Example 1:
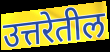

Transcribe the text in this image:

उत्तरेतील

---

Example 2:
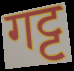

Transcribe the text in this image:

गट्ट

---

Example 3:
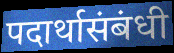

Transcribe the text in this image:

पदार्थासंबंधी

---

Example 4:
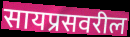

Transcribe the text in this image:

सायप्रसवरील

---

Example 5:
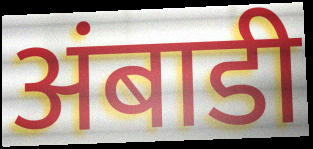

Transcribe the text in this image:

अंबाडी